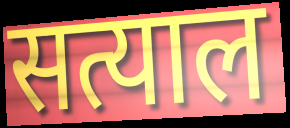
सत्याल